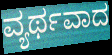
ವ್ಯರ್ಥವಾದ